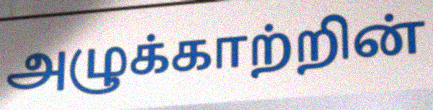
அழுக்காற்றின்